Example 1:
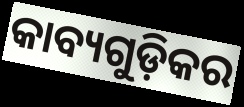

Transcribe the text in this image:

କାବ୍ୟଗୁଡ଼ିକର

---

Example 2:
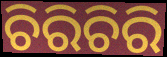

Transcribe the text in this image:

ଚିରିଚିରି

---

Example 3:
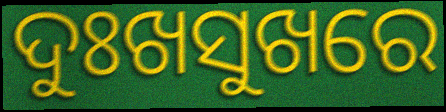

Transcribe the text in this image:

ଦୁଃଖସୁଖରେ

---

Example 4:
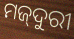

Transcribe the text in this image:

ମଜ୍‌ଦୁରୀ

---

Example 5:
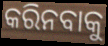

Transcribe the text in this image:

କରିନବାକୁ